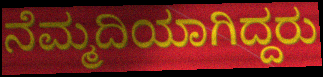
ನೆಮ್ಮದಿಯಾಗಿದ್ದರು